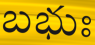
బభుః